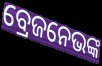
ବ୍ରେଜନେଭଙ୍କ